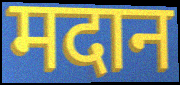
मदान